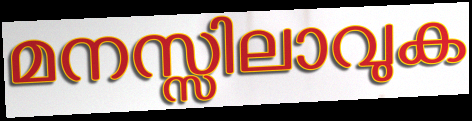
മനസ്സിലാവുക